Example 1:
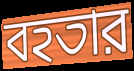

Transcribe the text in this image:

বহতার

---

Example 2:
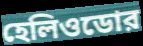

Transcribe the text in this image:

হেলিওডোর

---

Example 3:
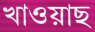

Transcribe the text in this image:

খাওয়াছ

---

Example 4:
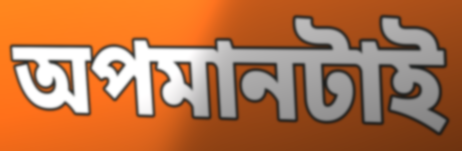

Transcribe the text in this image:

অপমানটাই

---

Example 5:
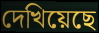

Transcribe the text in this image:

দেখিয়েছে